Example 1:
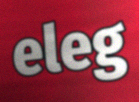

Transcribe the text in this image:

eleg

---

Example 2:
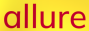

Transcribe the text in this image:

allure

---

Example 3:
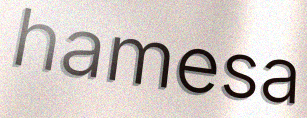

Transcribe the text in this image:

hamesa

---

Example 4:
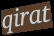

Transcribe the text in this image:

qirat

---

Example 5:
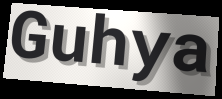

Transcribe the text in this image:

Guhya